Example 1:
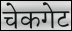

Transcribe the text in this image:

चेकगेट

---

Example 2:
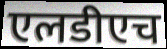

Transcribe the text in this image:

एलडीएच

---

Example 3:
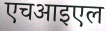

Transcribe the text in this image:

एचआइएल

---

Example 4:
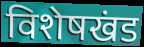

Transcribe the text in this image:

विशेषखंड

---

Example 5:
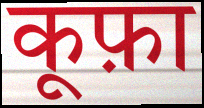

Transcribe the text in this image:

कूफ़ा